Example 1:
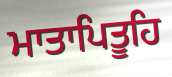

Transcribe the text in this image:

ਮਾਤਾਪਿਤੂਹਿ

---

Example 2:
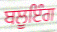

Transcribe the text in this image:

ਬਲੂਇੰਗ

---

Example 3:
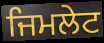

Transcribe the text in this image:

ਜਿਮਲੇਟ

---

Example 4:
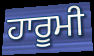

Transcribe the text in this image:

ਹਾਰੂਮੀ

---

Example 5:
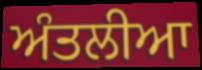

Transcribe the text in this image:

ਅੰਤਲੀਆ